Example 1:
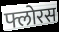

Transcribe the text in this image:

फ्लोरस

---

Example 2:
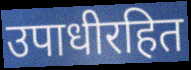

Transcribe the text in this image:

उपाधीरहित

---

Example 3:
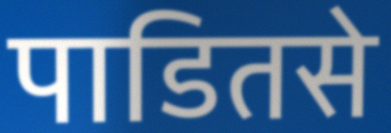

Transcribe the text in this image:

पाडितसे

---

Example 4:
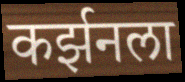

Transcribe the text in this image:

कर्झनला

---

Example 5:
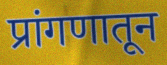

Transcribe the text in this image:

प्रांगणातून